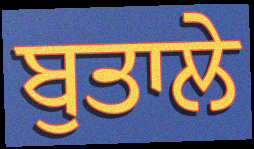
ਬੁਤਾਲੇ